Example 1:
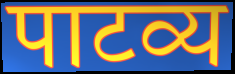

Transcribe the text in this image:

पाटव्य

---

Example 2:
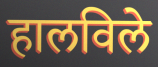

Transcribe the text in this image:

हालविले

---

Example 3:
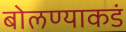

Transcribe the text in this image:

बोलण्याकडं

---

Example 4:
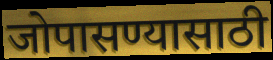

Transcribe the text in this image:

जोपासण्यासाठी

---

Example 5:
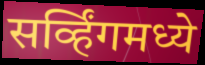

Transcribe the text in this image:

सर्व्हिंगमध्ये